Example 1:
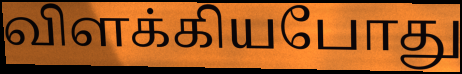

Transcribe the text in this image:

விளக்கியபோது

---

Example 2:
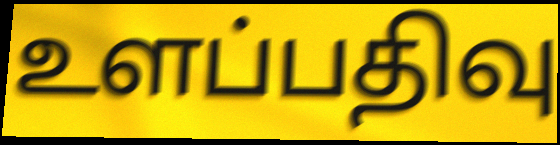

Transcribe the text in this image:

உளப்பதிவு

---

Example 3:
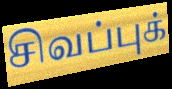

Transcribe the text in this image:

சிவப்புக்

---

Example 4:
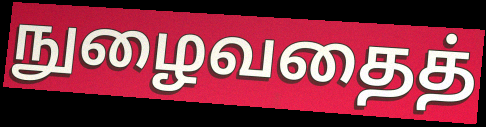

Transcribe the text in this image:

நுழைவதைத்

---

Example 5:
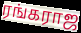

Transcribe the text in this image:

ரங்கராஜ